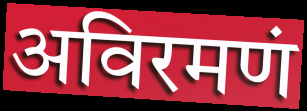
अविरमणं